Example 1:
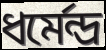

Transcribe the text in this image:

ধৰ্মেন্দ্ৰ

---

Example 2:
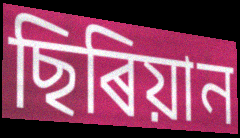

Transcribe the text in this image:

ছিৰিয়ান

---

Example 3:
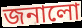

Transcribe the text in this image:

জনালো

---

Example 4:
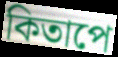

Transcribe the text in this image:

কিতাপে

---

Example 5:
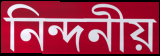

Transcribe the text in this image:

নিন্দনীয়